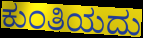
ಕುಂತಿಯದು